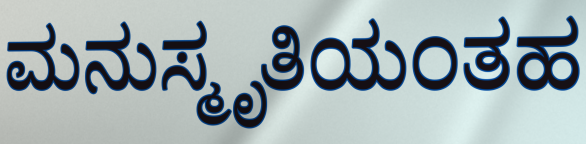
ಮನುಸ್ಮೃತಿಯಂತಹ